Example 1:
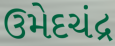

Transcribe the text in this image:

ઉમેદચંદ્ર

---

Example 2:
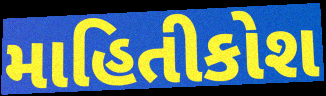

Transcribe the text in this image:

માહિતીકોશ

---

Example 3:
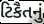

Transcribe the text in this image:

ટિકૈતનું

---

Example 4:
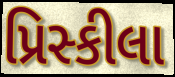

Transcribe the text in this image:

પ્રિસ્કીલા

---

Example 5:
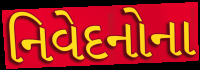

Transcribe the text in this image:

નિવેદનોના